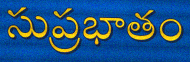
సుప్రభాతం